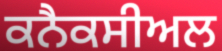
ਕਨੈਕਸੀਅਲ